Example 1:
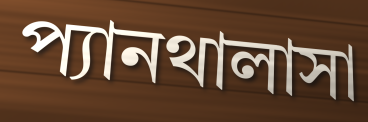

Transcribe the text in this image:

প্যানথালাসা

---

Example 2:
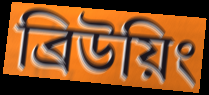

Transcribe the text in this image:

ব্রিউয়িং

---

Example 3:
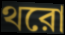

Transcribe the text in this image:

থরো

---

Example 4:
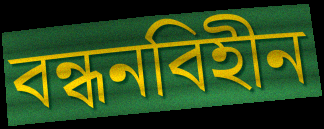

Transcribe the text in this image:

বন্ধনবিহীন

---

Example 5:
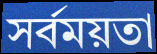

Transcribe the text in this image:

সর্বময়তা